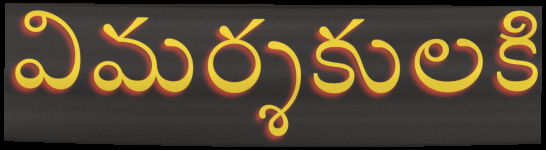
విమర్శకులకి